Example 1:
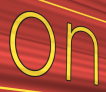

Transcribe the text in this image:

on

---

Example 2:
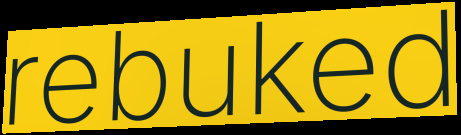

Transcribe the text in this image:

rebuked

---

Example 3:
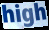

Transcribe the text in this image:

high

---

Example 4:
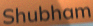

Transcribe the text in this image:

Shubham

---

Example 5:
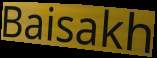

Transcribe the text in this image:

Baisakh